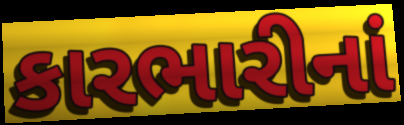
કારભારીનાં